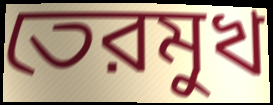
তেরমুখ